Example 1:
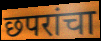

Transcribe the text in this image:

छपरांचा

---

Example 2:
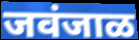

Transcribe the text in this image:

जवंजाळ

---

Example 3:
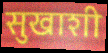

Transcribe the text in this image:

सुखाशी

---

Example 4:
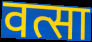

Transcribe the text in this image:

वत्सा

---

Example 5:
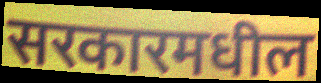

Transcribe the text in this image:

सरकारमधील